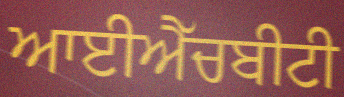
ਆਈਐੱਚਬੀਟੀ